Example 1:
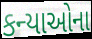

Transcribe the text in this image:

કન્યાઓના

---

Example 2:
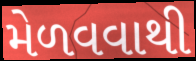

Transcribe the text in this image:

મેળવવાથી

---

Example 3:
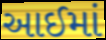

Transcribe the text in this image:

આઈમાં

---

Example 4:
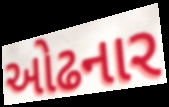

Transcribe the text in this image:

ઓઢનાર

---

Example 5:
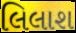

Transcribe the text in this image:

લિલાશ